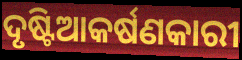
ଦୃଷ୍ଟିଆକର୍ଷଣକାରୀ